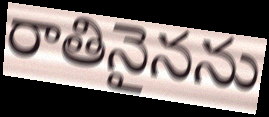
రాతినైనను